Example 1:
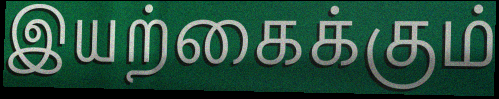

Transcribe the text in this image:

இயற்கைக்கும்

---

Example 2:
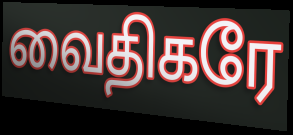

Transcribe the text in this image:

வைதிகரே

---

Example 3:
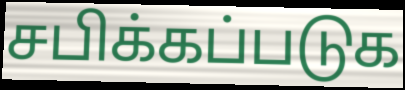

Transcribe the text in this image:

சபிக்கப்படுக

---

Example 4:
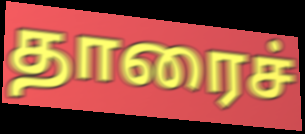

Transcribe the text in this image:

தாரைச்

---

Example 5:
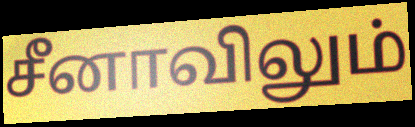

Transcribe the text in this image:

சீனாவிலும்